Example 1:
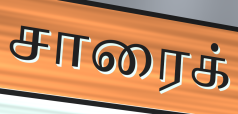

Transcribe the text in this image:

சாரைக்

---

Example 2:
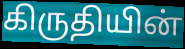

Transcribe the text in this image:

கிருதியின்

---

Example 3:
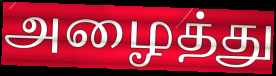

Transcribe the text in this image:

அழைத்து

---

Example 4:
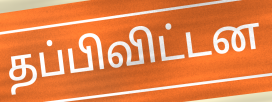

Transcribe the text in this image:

தப்பிவிட்டன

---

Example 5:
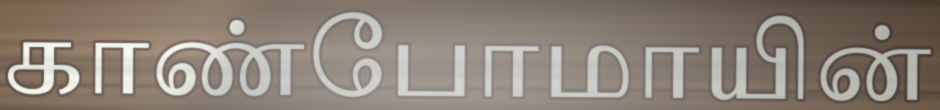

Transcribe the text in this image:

காண்போமாயின்